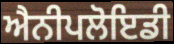
ਐਨੀਪਲੋਇਡੀ